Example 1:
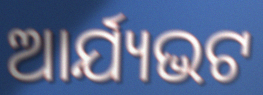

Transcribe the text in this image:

ଆର୍ଯ୍ୟଭଟ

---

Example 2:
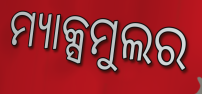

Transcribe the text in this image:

ମ୍ୟାକ୍ସମୁଲର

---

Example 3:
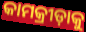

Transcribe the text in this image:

କାମକ୍ରୀଡ଼ାକୁ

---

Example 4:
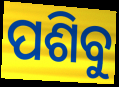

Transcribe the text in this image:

ପଶିବୁ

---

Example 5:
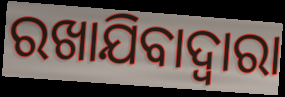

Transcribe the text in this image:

ରଖାଯିବାଦ୍ଵାରା